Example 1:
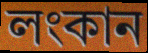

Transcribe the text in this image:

লংকান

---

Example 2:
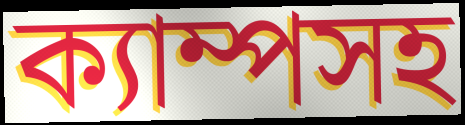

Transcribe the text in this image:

ক্যাম্পসহ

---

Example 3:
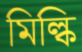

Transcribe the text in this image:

মিল্কি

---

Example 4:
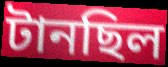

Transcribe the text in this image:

টানছিল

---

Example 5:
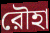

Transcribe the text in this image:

রৌহা